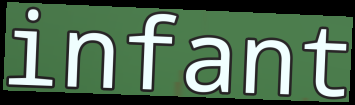
infant